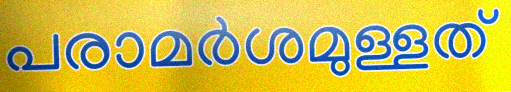
പരാമർശമുള്ളത്